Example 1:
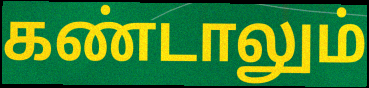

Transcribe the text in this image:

கண்டாலும்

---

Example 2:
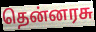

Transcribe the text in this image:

தென்னரசு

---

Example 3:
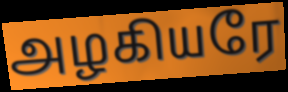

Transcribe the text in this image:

அழகியரே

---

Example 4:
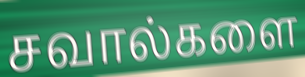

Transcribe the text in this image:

சவால்களை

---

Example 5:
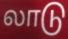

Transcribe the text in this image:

லாடு